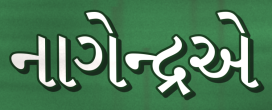
નાગેન્દ્રએ